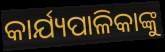
କାର୍ଯ୍ୟପାଳିକାଙ୍କୁ